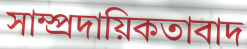
সাম্প্ৰদায়িকতাবাদ